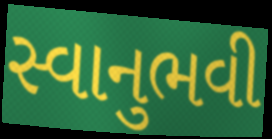
સ્વાનુભવી